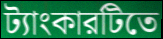
ট্যাংকারটিতে